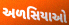
અળસિયાઓ